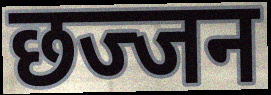
छज्जन